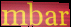
mbar